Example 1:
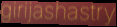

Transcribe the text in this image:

girijashastry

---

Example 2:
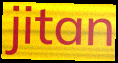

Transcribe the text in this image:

jitan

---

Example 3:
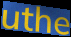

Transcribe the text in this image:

uthe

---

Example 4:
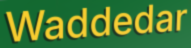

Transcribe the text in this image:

Waddedar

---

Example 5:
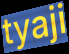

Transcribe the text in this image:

tyaji